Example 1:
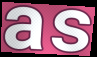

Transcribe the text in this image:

as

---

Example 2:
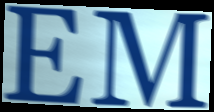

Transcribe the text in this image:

EM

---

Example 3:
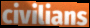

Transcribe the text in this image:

civilians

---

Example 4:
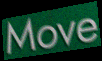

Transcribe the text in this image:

Move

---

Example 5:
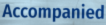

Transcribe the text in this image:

Accompanied